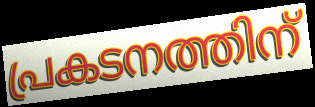
പ്രകടനത്തിന്